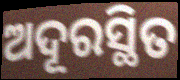
ଅଦୂରସ୍ଥିତ